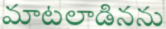
మాటలాడినను